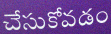
చేసుకోవడం